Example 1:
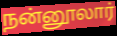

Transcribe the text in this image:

நன்னூலார்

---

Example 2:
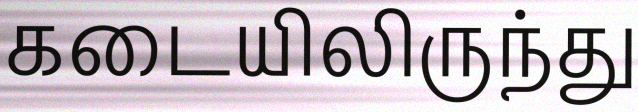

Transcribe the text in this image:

கடையிலிருந்து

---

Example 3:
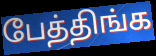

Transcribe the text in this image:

பேத்திங்க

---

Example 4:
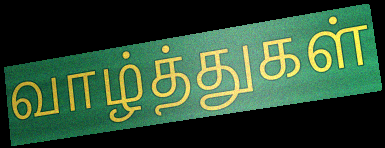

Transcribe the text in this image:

வாழ்த்துகள்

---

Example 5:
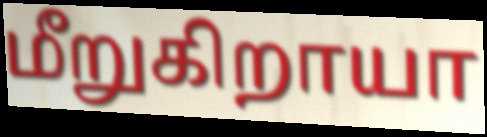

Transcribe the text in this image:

மீறுகிறாயா